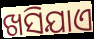
ଖସିଯାଏ